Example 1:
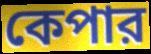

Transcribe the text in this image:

কেপার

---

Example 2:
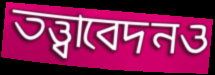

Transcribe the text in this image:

তত্ত্বাবেদনও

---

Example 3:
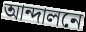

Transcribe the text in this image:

আন্দালনে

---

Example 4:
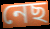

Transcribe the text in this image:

নেছ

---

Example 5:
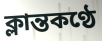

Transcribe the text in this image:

ক্লান্তকণ্ঠে